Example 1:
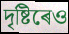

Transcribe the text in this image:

দৃষ্টিৰেও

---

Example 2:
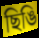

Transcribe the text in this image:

ছিঙি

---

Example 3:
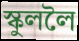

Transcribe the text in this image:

স্কুললৈ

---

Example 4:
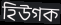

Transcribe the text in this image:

হিউগক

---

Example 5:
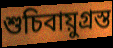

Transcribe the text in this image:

শুচিবায়ুগ্ৰস্ত